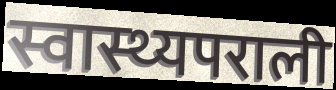
स्वास्थ्यपराली